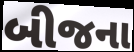
બીજના